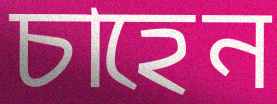
চাহেন